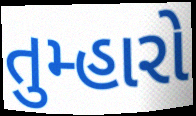
તુમ્હારો